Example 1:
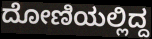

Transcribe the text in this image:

ದೋಣಿಯಲ್ಲಿದ್ದ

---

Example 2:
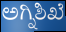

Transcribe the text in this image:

ಅಗ್ನಿಶಿಖೆ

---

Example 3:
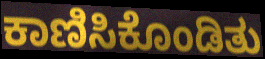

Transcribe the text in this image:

ಕಾಣಿಸಿಕೊಂಡಿತು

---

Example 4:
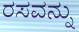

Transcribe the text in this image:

ರಸವನ್ನು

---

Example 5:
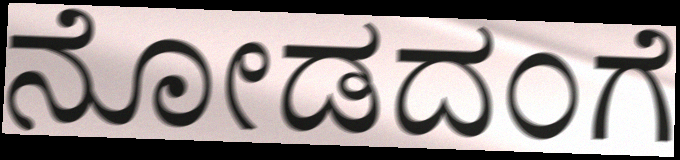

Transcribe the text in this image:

ನೋಡದಂಗೆ